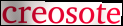
creosote